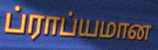
ப்ராப்யமான